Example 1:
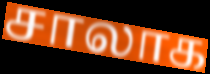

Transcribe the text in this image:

சாலாக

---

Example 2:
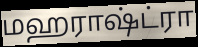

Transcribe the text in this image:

மஹராஷ்ட்ரா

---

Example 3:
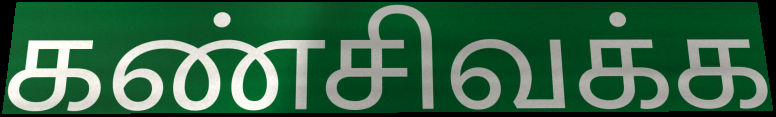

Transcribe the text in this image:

கண்சிவக்க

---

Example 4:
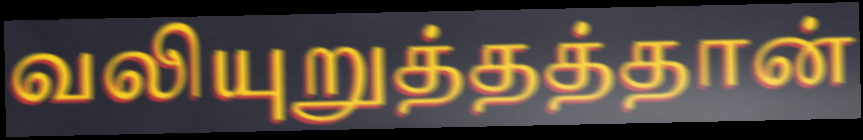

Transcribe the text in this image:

வலியுறுத்தத்தான்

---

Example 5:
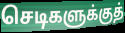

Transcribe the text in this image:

செடிகளுக்குத்